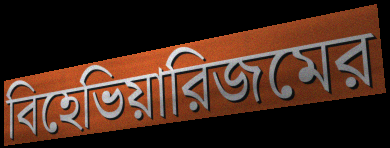
বিহেভিয়ারিজমের